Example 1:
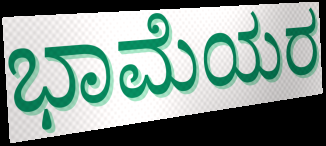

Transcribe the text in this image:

ಭಾಮೆಯರ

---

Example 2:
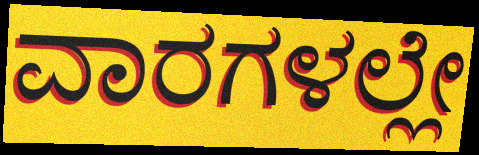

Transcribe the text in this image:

ವಾರಗಳಲ್ಲೇ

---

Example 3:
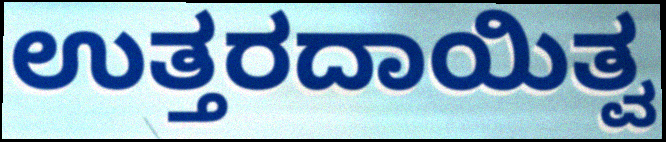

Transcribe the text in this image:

ಉತ್ತರದಾಯಿತ್ವ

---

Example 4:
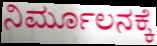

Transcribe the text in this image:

ನಿರ್ಮೂಲನಕ್ಕೆ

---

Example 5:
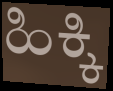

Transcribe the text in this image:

ಹಿಕ್ಕಿ